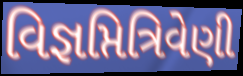
વિજ્ઞપ્તિત્રિવેણી